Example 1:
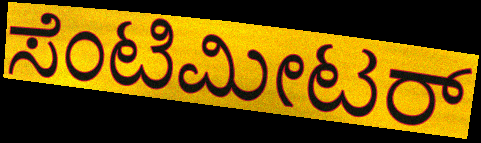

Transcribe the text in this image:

ಸೆಂಟಿಮೀಟರ್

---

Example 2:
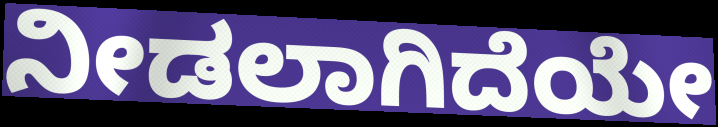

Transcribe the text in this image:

ನೀಡಲಾಗಿದೆಯೇ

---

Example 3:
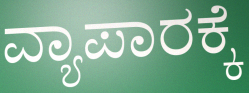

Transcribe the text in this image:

ವ್ಯಾಪಾರಕ್ಕೆ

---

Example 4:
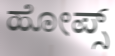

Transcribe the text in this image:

ಹೋಪ್ಸ್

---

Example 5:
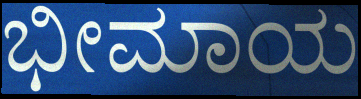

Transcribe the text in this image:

ಭೀಮಾಯ